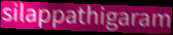
silappathigaram